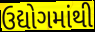
ઉદ્યોગમાંથી